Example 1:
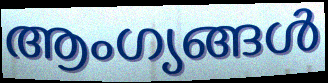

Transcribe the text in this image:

ആംഗ്യങ്ങൾ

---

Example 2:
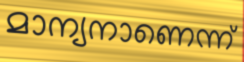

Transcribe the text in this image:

മാന്യനാണെന്ന്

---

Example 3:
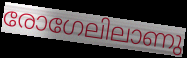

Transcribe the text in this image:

രോഗേലിലാണു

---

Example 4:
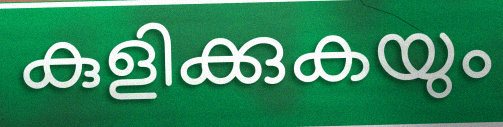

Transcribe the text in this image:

കുളിക്കുകയും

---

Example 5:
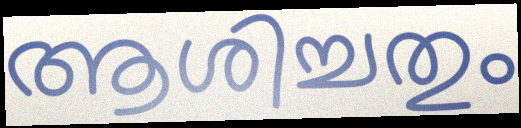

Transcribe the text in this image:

ആശിച്ചതും